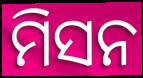
ମିସନ